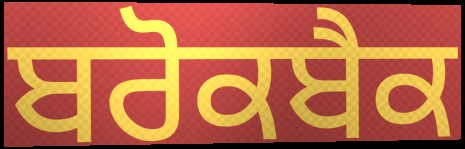
ਬਰੋਕਬੈਕ